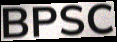
BPSC